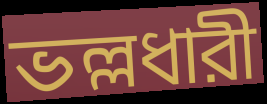
ভল্লধারী